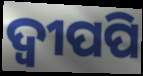
ଦ୍ବୀପପି